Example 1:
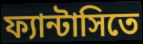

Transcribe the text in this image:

ফ্যান্টাসিতে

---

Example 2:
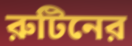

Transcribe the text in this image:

রুটিনের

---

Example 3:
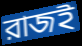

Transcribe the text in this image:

রাজই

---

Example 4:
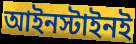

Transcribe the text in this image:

আইনস্টাইনই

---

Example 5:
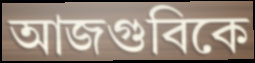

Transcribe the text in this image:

আজগুবিকে